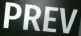
PREV